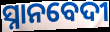
ସ୍ନାନବେଦୀ